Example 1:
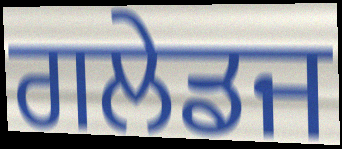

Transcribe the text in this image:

ਗਲੇਡਜ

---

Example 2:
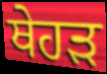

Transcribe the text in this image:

ਥੇਹੜ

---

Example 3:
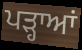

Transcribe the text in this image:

ਪੜ੍ਹਾਆਂ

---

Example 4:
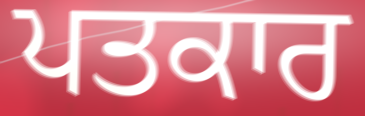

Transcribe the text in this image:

ਪਤਕਾਰ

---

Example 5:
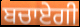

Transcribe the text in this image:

ਬਚਾਏਗੀ